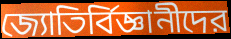
জ্যোতির্বিজ্ঞানীদের